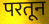
परतून